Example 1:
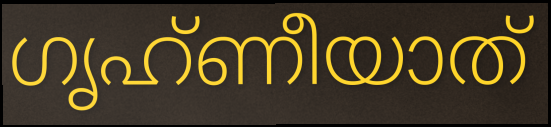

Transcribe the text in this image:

ഗൃഹ്ണീയാത്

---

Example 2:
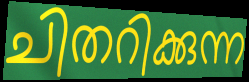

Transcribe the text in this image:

ചിതറിക്കുന്ന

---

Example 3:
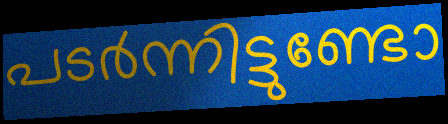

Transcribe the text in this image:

പടർന്നിട്ടുണ്ടോ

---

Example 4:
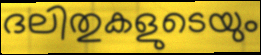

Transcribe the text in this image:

ദലിതുകളുടെയും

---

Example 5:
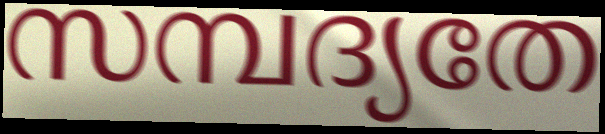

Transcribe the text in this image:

സമ്പദ്യതേ